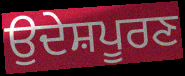
ਉਦੇਸ਼ਪੂਰਣ